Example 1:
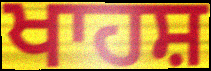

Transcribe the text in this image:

ਖਾਹਸ਼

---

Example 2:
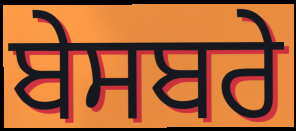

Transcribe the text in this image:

ਬੇਸਬਰੇ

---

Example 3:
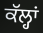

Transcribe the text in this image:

ਕੱਲ੍ਹਾਂ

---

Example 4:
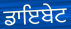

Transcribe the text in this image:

ਡਾਇਬੇਟ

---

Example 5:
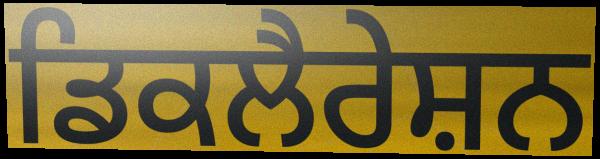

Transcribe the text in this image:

ਡਿਕਲੈਰੇਸ਼ਨ